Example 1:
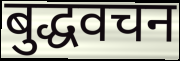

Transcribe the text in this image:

बुद्धवचन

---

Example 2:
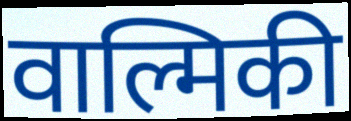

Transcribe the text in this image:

वाल्मिकी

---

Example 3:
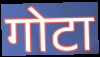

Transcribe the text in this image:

गोटा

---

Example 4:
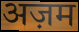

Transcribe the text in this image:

अज़म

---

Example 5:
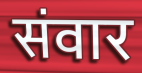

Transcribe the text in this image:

संवार